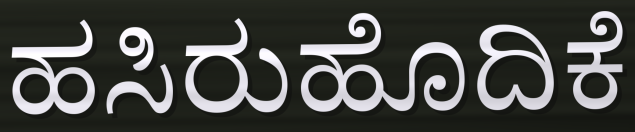
ಹಸಿರುಹೊದಿಕೆ